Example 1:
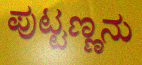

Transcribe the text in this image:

ಪುಟ್ಟಣ್ಣನು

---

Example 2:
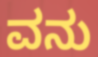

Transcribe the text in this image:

ವನು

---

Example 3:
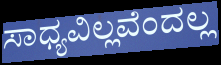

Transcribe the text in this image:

ಸಾಧ್ಯವಿಲ್ಲವೆಂದಲ್ಲ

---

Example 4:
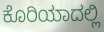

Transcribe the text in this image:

ಕೊರಿಯಾದಲ್ಲಿ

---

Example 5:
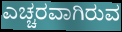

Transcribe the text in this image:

ಎಚ್ಚರವಾಗಿರುವ